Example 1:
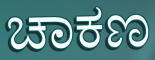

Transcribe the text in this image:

ಚಾಕಣ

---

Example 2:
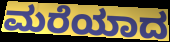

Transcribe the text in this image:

ಮರೆಯಾದ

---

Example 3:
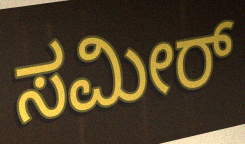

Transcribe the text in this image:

ಸಮೀರ್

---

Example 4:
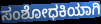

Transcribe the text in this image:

ಸಂಶೋಧಕಿಯಾಗಿ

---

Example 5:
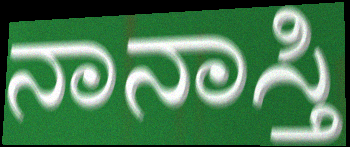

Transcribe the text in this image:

ನಾನಾಸ್ತಿ